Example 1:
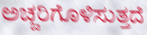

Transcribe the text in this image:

ಅಚ್ಚರಿಗೊಳಿಸುತ್ತದೆ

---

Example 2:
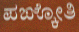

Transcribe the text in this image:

ಪಙ್ಕೋತಿ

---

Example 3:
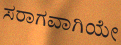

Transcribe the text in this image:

ಸರಾಗವಾಗಿಯೇ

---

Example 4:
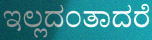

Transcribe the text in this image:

ಇಲ್ಲದಂತಾದರೆ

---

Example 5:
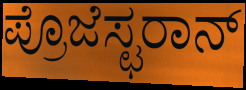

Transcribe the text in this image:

ಪ್ರೊಜೆಸ್ಟರಾನ್